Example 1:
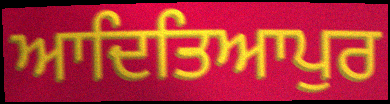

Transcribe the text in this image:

ਆਦਿਤਿਆਪੁਰ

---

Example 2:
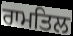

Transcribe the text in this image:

ਰਾਮਤਿਲ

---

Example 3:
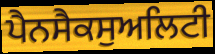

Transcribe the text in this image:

ਪੈਨਸੈਕਸੁਅਲਿਟੀ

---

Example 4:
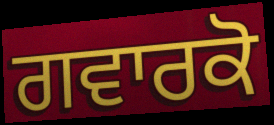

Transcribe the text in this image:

ਗਵਾਰਕੋ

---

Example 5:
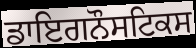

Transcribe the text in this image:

ਡਾਇਗਨੌਸਟਿਕਸ